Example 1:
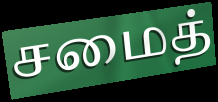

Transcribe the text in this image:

சமைத்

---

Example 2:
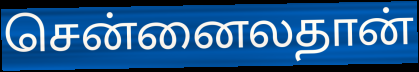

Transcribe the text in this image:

சென்னைலதான்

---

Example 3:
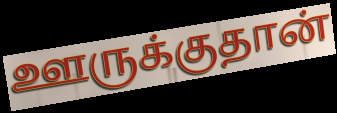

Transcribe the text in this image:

ஊருக்குதான்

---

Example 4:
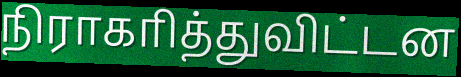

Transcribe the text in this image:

நிராகரித்துவிட்டன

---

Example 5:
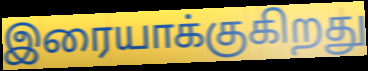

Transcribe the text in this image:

இரையாக்குகிறது